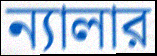
ন্যালার